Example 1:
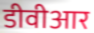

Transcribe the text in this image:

डीवीआर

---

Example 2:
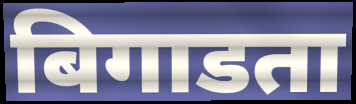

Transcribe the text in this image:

बिगाडता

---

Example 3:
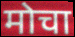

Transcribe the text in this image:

मोचा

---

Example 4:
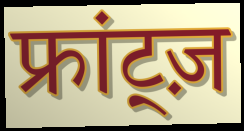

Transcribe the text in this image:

फ्रांट्ज़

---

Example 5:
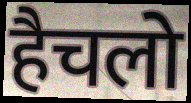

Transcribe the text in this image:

हैचलो